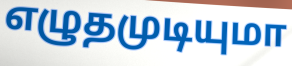
எழுதமுடியுமா